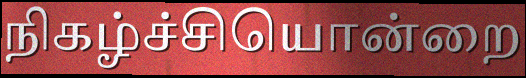
நிகழ்ச்சியொன்றை